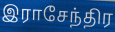
இராசேந்திர